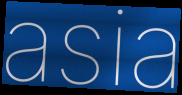
asia